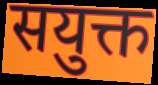
सयुक्त